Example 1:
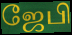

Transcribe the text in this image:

ஜேபி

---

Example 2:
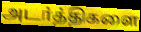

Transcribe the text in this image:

அடர்த்திகளை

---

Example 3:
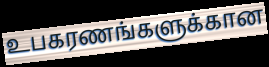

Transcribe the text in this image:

உபகரணங்களுக்கான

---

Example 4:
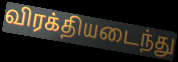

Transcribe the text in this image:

விரக்தியடைந்து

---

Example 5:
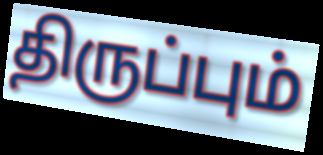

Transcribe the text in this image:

திருப்பும்